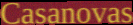
Casanovas